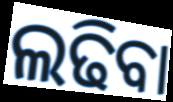
ଲଢିବା